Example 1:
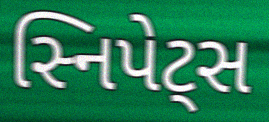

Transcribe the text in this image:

સ્નિપેટ્સ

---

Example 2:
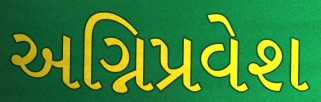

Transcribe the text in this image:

અગ્નિપ્રવેશ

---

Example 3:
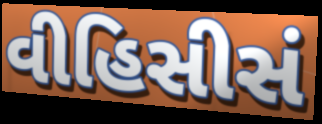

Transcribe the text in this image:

વીહિસીસં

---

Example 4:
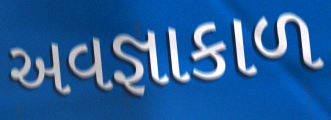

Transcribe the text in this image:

અવજ્ઞાકાળ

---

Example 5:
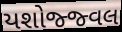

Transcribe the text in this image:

યશોજ્જ્વલ